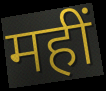
महीं